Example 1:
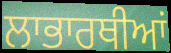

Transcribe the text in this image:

ਲਾਭਾਰਥੀਆਂ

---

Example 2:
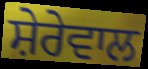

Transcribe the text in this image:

ਸ਼ੇਰੇਵਾਲ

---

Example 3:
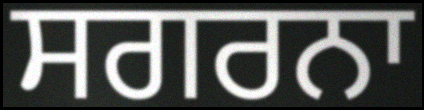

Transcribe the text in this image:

ਸਗਰਨਾ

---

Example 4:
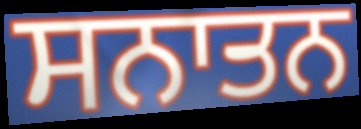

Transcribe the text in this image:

ਸਨਾਤਨ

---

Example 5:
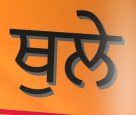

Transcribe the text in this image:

ਥੁਲੇ